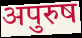
अपुरुष